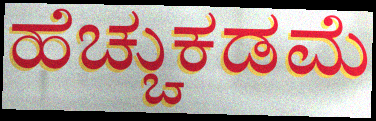
ಹೆಚ್ಚುಕಡಮೆ